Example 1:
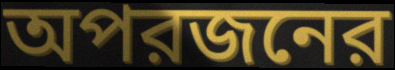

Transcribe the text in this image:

অপরজনের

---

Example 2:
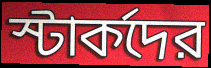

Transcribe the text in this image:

স্টার্কদের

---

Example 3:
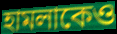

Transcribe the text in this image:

হামলাকেও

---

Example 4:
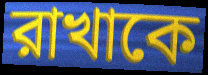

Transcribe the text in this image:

রাখাকে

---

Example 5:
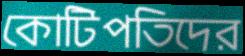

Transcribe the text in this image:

কোটিপতিদের